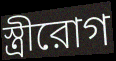
স্ত্রীরোগ